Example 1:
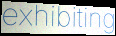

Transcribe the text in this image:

exhibiting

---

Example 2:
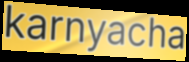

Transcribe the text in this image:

karnyacha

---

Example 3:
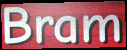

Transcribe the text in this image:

Bram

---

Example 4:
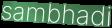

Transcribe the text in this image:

sambhadi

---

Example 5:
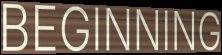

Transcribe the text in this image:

BEGINNING